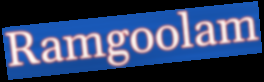
Ramgoolam